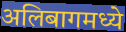
अलिबागमध्ये